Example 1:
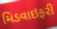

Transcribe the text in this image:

મિડવાઇફરી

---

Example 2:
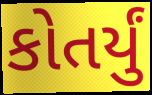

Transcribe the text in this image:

કોતર્યું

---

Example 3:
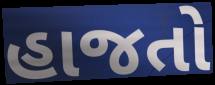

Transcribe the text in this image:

હાજતો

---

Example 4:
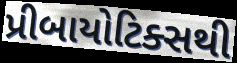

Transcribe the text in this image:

પ્રીબાયોટિક્સથી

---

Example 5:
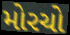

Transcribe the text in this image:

મોરચો